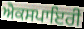
ਐਕਸਪਾਇਰੀ